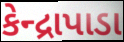
કેન્દ્રાપાડા